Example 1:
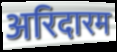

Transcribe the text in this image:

अरिदारम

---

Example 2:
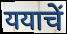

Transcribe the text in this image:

ययाचें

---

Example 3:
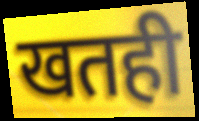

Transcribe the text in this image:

खतही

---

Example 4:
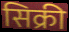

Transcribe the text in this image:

सिक्री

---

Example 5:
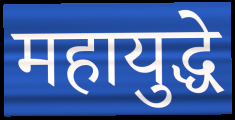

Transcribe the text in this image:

महायुद्धे